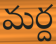
మర్ద